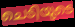
ചെടിയുടെ